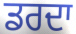
ਡਰਦਾ